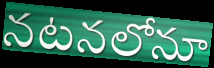
నటనలోనూ